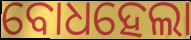
ବୋଧହେଲା